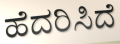
ಹೆದರಿಸಿದೆ